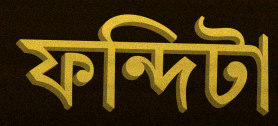
ফন্দিটা